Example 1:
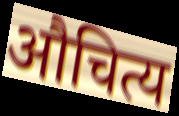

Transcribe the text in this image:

औचित्य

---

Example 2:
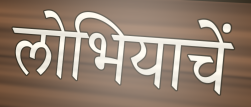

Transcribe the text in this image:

लोभियाचें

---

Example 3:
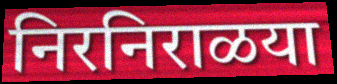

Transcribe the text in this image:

निरनिराळया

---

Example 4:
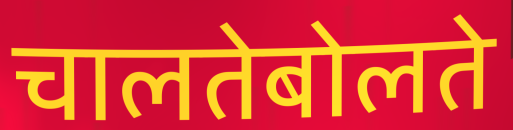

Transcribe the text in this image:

चालतेबोलते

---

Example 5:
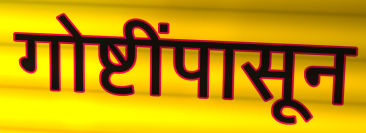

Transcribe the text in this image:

गोष्टींपासून